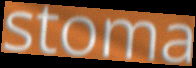
stoma